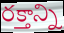
రక్తాన్ని